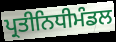
ਪ੍ਰਤੀਨਿਧੀਮੰਡਲ